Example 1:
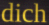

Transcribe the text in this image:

dich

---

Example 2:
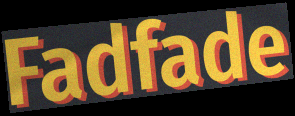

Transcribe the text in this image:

Fadfade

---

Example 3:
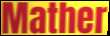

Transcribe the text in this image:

Mather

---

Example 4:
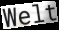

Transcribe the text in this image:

Welt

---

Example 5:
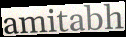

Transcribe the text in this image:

amitabh